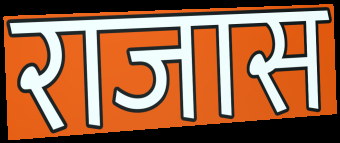
राजास